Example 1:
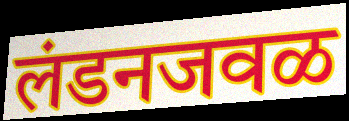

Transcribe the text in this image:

लंडनजवळ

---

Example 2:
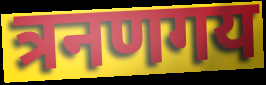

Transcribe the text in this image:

त्रनणगय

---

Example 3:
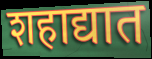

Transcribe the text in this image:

शहाद्यात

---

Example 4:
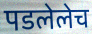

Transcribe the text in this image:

पडलेलेच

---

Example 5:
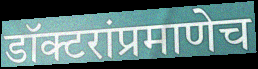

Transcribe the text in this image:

डॉक्टरांप्रमाणेच